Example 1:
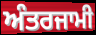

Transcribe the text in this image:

ਅੰਤਰਜਾਮੀ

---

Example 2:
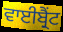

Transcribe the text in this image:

ਵਾਈਬ੍ਰੈਂਟ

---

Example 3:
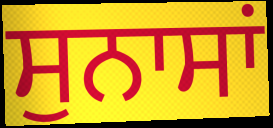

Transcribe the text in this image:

ਸੁਨਾਸਾਂ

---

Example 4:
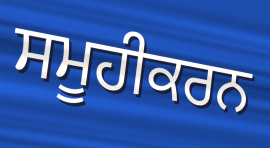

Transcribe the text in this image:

ਸਮੂਹੀਕਰਨ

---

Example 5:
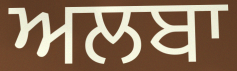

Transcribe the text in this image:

ਅਲਬਾ